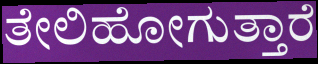
ತೇಲಿಹೋಗುತ್ತಾರೆ